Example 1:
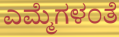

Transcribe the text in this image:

ಎಮ್ಮೆಗಳಂತೆ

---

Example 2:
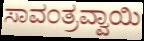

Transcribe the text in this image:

ಸಾವಂತ್ರವ್ವಾಯಿ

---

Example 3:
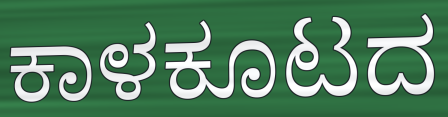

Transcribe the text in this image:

ಕಾಳಕೂಟದ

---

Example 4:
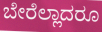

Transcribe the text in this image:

ಬೇರೆಲ್ಲಾದರೂ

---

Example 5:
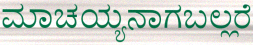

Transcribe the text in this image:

ಮಾಚಯ್ಯನಾಗಬಲ್ಲರೆ